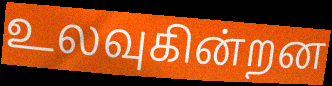
உலவுகின்றன